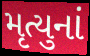
મૃત્યુનાં